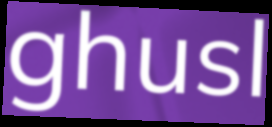
ghusl